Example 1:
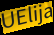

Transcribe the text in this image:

UElija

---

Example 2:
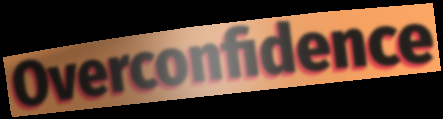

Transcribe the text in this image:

Overconfidence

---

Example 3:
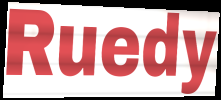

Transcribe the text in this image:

Ruedy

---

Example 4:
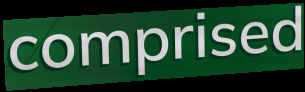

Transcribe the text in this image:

comprised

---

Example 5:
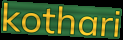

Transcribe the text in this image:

kothari